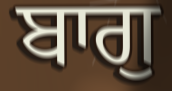
ਬਾਗੁ